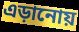
এড়ানোয়